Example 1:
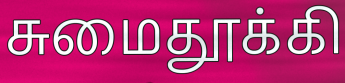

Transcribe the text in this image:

சுமைதூக்கி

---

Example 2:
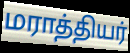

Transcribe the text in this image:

மராத்தியர்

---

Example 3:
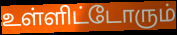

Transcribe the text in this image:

உள்ளிட்டோரும்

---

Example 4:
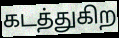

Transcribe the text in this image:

கடத்துகிற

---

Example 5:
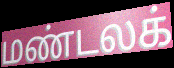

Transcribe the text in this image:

மண்டலக்